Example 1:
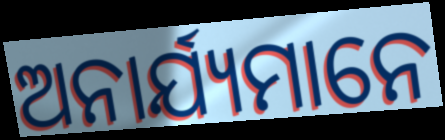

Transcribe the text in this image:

ଅନାର୍ଯ୍ୟମାନେ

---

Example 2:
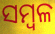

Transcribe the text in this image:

ସମ୍ବଳ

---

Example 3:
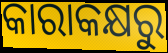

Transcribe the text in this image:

କାରାକକ୍ଷରୁ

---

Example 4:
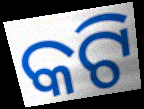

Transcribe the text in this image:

କଟି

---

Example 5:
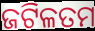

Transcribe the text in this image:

ଜଟିଳତମ